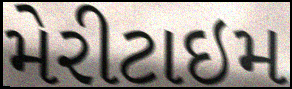
મેરીટાઇમ